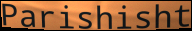
Parishisht